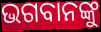
ଭଗବାନଙ୍କୁ